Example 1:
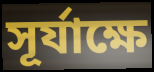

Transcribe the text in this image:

সূর্যাক্ষে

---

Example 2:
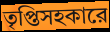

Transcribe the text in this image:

তৃপ্তিসহকারে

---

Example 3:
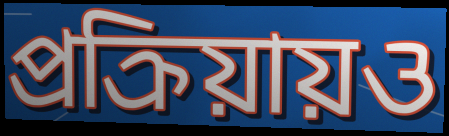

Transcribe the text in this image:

প্রক্রিয়ায়ও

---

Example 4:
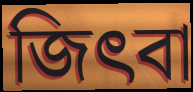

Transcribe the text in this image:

জিৎবা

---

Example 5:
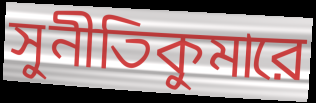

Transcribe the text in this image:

সুনীতিকুমারে